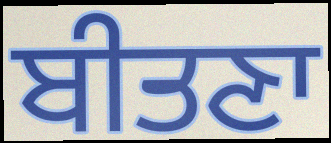
ਬੀਤਣਾ